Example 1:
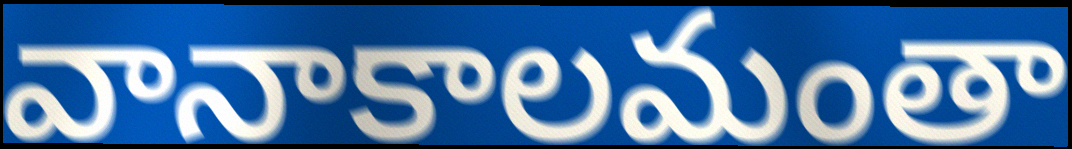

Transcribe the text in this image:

వానాకాలమంతా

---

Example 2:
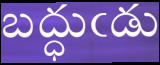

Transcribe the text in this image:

బద్ధుఁడు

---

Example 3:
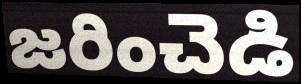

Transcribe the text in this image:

జరించెడి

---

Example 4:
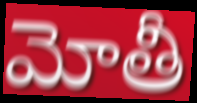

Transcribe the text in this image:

మోతీ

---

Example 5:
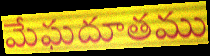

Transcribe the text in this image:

మేఘదూతము